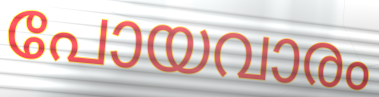
പോയവാരം